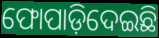
ଫୋପାଡ଼ିଦେଇଛି